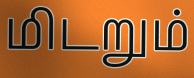
மிடறும்